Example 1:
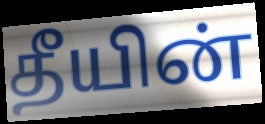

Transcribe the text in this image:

தீயின்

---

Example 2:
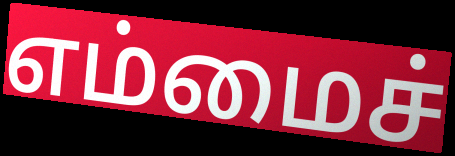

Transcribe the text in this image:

எம்மைச்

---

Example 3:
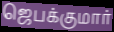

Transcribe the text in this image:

ஜெபக்குமார்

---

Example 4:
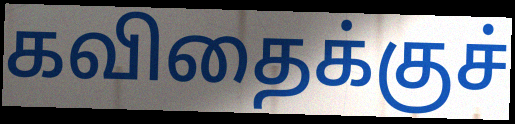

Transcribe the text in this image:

கவிதைக்குச்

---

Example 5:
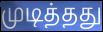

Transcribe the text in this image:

முடித்தது